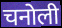
चनोली